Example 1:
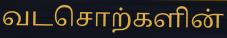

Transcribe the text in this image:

வடசொற்களின்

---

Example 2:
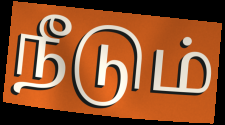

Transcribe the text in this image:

நீடும்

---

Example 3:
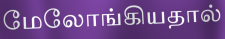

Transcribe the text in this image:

மேலோங்கியதால்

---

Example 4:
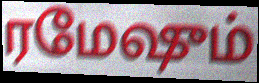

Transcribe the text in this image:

ரமேஷும்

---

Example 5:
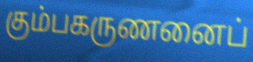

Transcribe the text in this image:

கும்பகருணனைப்